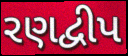
રણદ્વીપ